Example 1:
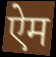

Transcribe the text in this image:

ऐम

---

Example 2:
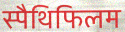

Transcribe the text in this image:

स्पैथिफिलम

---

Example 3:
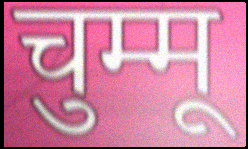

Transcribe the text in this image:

चुम्मू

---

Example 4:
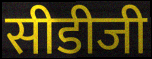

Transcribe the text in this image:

सीडीजी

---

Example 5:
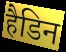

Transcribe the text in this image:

हैडिन